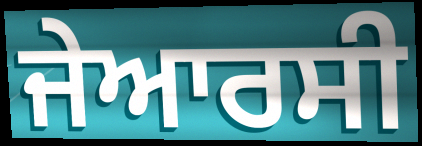
ਜੇਆਰਸੀ